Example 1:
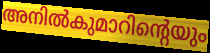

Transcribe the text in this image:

അനിൽകുമാറിന്റെയും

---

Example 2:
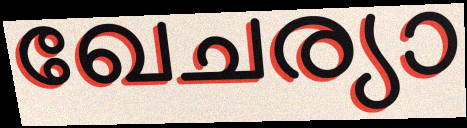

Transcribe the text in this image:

ഖേചര്യാ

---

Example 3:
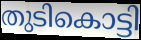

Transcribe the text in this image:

തുടികൊട്ടി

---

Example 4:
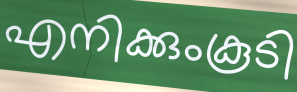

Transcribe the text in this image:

എനിക്കുംകൂടി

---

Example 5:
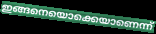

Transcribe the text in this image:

ഇങ്ങനെയൊക്കെയാണെന്ന്